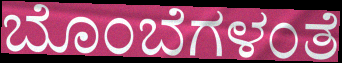
ಬೊಂಬೆಗಳಂತೆ